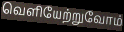
வெளியேற்றுவோம்